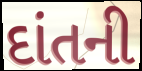
દાંતની